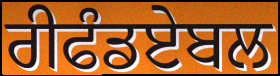
ਰੀਫੰਡਏਬਲ